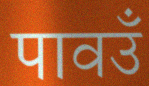
पावउँ